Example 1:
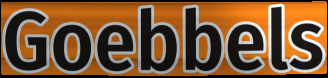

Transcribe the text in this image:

Goebbels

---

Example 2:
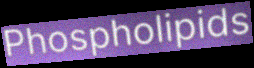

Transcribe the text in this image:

Phospholipids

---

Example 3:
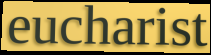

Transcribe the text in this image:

eucharist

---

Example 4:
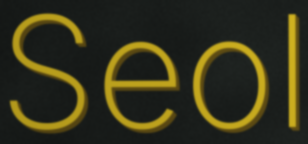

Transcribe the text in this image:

Seol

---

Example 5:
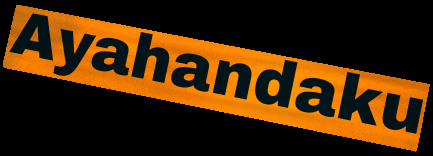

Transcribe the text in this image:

Ayahandaku